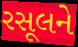
રસૂલને